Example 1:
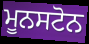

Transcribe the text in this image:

ਮੂਨਸਟੋਨ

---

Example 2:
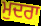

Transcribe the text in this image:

ਮੁਦਰਾ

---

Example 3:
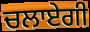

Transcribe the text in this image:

ਚਲਾਏਗੀ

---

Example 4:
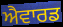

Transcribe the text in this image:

ਐਵਾਰਡ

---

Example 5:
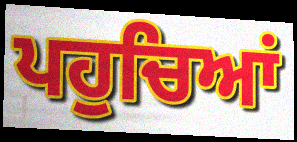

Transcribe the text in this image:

ਪਹੁਚਿਆਂ